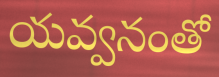
యవ్వనంతో